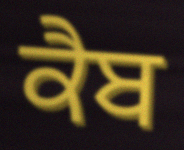
ਕੈਬ